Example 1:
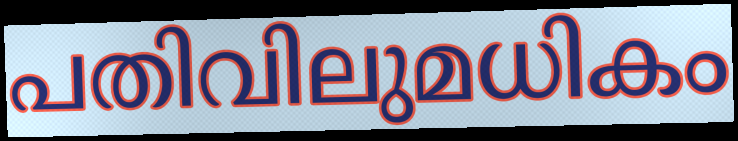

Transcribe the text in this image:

പതിവിലുമധികം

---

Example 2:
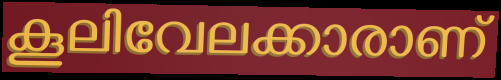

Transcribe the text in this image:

കൂലിവേലക്കാരാണ്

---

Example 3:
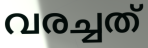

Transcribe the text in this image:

വരച്ചത്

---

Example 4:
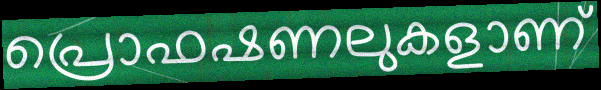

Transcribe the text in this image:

പ്രൊഫഷണലുകളാണ്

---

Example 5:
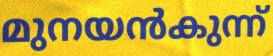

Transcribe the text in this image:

മുനയൻകുന്ന്